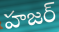
హజర్